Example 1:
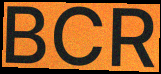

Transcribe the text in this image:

BCR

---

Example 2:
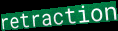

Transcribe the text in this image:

retraction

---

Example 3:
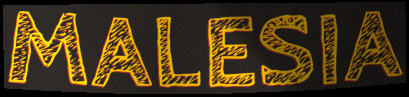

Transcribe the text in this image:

MALESIA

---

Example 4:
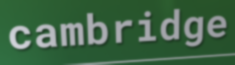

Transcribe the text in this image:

cambridge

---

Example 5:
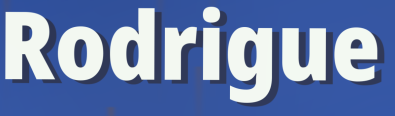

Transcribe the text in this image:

Rodrigue